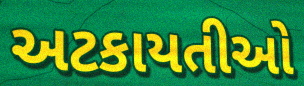
અટકાયતીઓ